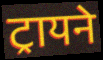
ट्रायने